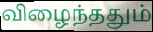
விழைந்ததும்